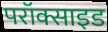
परॉक्साइड